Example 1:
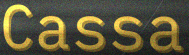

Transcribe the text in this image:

Cassa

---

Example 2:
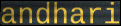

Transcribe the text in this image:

andhari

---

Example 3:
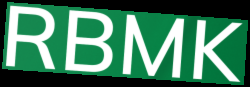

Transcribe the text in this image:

RBMK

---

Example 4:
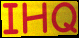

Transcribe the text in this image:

IHQ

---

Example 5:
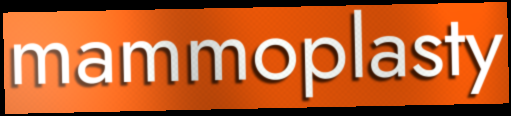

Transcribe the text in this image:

mammoplasty